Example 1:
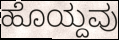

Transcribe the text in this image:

ಹೊಯ್ದವು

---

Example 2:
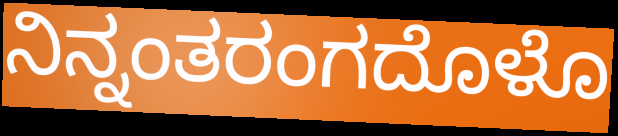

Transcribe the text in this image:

ನಿನ್ನಂತರಂಗದೊಳೊ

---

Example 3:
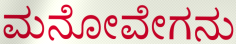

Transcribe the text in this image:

ಮನೋವೇಗನು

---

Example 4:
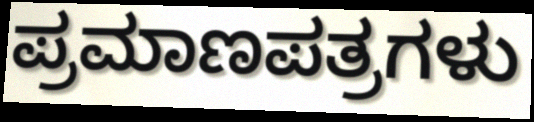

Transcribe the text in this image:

ಪ್ರಮಾಣಪತ್ರಗಳು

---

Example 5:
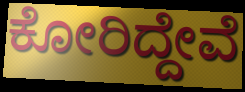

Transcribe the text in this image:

ಕೋರಿದ್ದೇವೆ